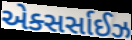
એક્સર્સાઈઝ